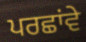
ਪਰਛਾਂਵੇ